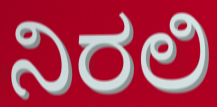
ನಿರಲಿ